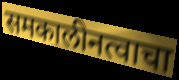
समकालीनत्वाचा